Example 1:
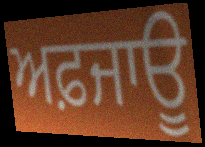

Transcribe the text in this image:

ਅਫ਼ਜਾਊ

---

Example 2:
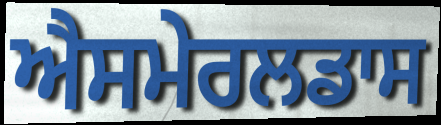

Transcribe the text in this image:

ਐਸਮੇਰਲਡਾਸ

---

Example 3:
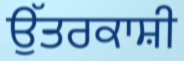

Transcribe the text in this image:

ਉੱਤਰਕਾਸ਼ੀ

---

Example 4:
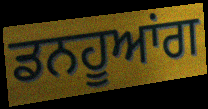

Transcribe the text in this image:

ਡਨਹੂਆਂਗ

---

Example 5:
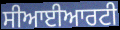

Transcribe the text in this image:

ਸੀਆਈਆਰਟੀ